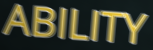
ABILITY